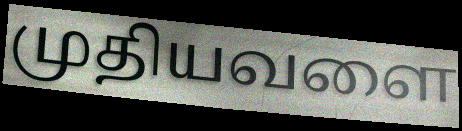
முதியவளை